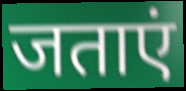
जताएं